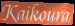
Kaikoura